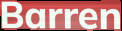
Barren